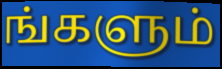
ங்களும்